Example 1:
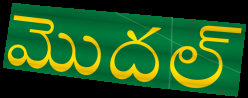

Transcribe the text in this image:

మొదల్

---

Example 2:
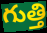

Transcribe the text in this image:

గుత్తి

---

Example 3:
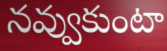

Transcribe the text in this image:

నవ్వుకుంటా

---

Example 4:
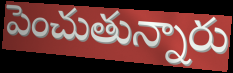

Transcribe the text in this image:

పెంచుతున్నారు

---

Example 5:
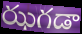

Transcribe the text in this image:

ఝగడా